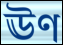
ঊণ